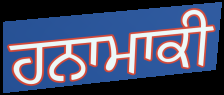
ਹਨਾਮਾਕੀ